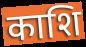
काशि